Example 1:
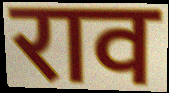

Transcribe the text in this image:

राव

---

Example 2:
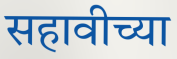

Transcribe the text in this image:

सहावीच्या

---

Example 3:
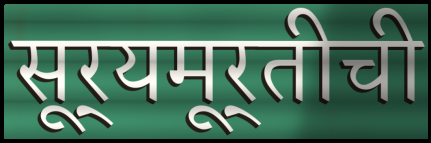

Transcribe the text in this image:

सूर्यमूर्तीची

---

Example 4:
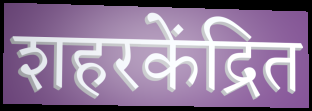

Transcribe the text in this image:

शहरकेंद्रित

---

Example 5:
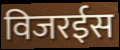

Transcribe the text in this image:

विजरईस